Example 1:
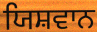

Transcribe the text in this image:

ਯਿਸ਼ਵਾਨ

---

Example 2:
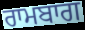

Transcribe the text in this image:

ਰਾਮਬਾਗ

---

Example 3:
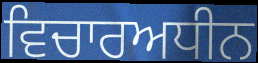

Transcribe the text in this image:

ਵਿਚਾਰਅਧੀਨ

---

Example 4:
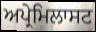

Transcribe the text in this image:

ਅਪ੍ਰੇਮਿਲਾਸਟ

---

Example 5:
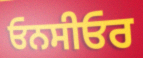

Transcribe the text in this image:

ਓਨਸੀਓਰ